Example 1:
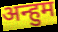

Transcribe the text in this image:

अन्हुम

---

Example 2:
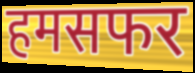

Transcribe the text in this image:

हमसफर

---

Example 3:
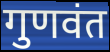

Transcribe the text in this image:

गुणवंत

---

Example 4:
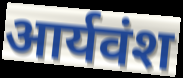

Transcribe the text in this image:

आर्यवंश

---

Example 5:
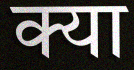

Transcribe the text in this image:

क्या